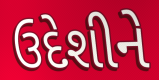
ઉદેશીને